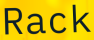
Rack